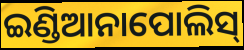
ଇଣ୍ଡିଆନାପୋଲିସ୍